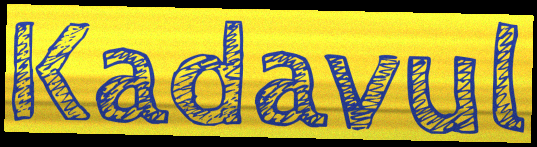
Kadavul